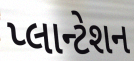
પ્લાન્ટેશન